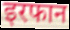
इरफान